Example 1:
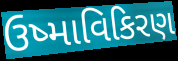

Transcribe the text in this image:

ઉષ્માવિકિરણ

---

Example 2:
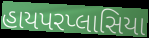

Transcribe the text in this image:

હાયપરપ્લાસિયા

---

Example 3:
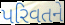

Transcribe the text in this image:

પરિવતને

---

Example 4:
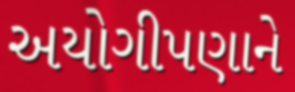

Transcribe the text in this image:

અયોગીપણાને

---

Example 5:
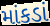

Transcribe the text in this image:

માંકડાં